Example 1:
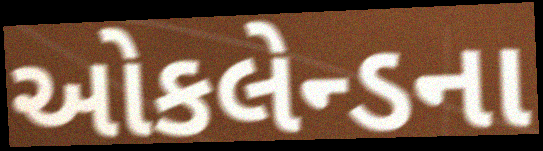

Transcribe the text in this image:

ઓકલેન્ડના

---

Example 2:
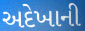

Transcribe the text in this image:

અદેખાની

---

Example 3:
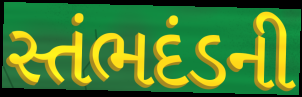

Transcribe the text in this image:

સ્તંભદંડની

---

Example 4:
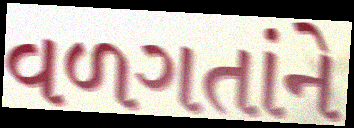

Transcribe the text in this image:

વળગતાંને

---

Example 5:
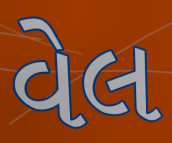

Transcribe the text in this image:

વેલ